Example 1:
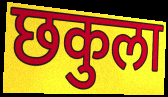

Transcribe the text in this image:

छकुला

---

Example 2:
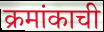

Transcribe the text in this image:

क्रमांकाची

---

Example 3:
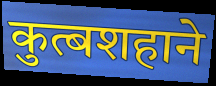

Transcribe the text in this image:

कुत्बशहाने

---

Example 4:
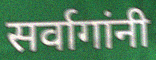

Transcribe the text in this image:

सर्वागांनी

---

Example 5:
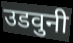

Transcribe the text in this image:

उडवुनी